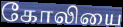
கோலியை